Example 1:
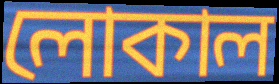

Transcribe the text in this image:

লোকাল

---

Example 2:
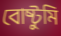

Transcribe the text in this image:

বোষ্টুমি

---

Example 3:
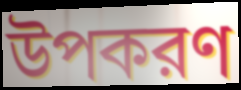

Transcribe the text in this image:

উপকরণ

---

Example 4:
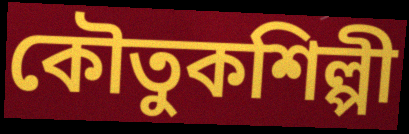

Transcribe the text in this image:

কৌতুকশিল্পী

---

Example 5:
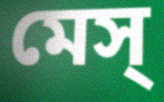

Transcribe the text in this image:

মেস্